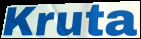
Kruta